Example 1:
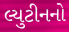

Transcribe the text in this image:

લ્યુટીનનો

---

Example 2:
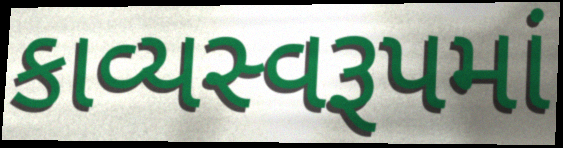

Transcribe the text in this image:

કાવ્યસ્વરૂપમાં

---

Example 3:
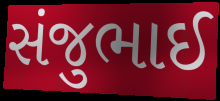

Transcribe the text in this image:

સંજુભાઈ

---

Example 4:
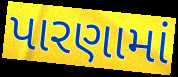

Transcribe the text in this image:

પારણામાં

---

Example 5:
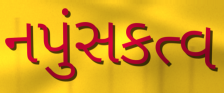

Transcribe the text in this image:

નપુંસકત્વ